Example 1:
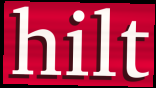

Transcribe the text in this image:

hilt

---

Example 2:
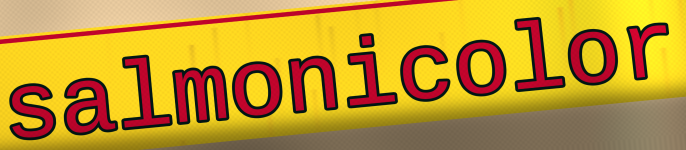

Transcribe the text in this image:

salmonicolor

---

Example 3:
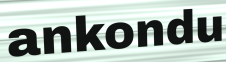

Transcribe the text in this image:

ankondu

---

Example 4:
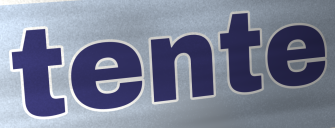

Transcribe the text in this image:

tente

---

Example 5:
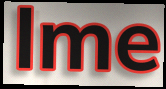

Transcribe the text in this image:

Ime